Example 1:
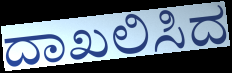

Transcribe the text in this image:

ದಾಖಲಿಸಿದ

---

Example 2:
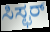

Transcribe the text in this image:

ಸಿಸ್ಟರ್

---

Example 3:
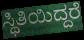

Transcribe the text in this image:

ಸ್ಥಿತಿಯಿದ್ದರೆ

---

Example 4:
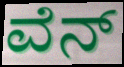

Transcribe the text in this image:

ವೆನ್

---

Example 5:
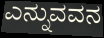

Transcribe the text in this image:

ಎನ್ನುವವನ